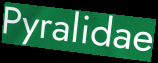
Pyralidae